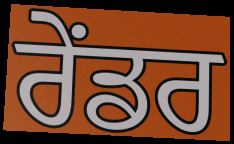
ਰੇੰਡਰ